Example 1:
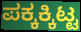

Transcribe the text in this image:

ಪಕ್ಕಕ್ಕಿಟ್ಟ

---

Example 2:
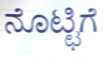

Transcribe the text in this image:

ನೊಟ್ಟಿಗೆ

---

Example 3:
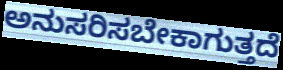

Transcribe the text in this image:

ಅನುಸರಿಸಬೇಕಾಗುತ್ತದೆ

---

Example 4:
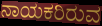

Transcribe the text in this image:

ನಾಯಕರಿರುವ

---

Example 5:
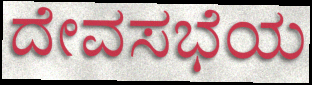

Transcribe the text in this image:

ದೇವಸಭೆಯ